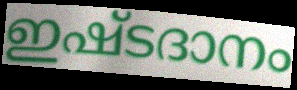
ഇഷ്ടദാനം